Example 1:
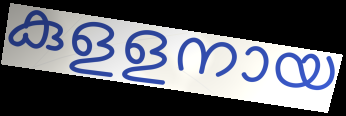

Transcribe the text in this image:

കുളളനായ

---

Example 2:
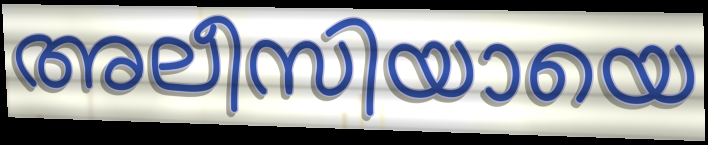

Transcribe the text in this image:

അലീസിയായെ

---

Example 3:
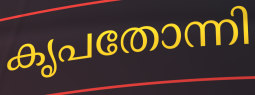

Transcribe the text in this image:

കൃപതോന്നി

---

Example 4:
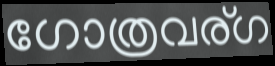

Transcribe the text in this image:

ഗോത്രവര്ഗ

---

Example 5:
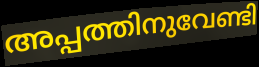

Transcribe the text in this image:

അപ്പത്തിനുവേണ്ടി